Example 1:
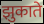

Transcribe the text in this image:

झुकाते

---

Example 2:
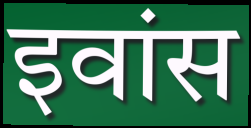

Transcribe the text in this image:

इवांस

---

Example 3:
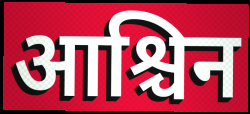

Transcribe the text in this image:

आश्चिन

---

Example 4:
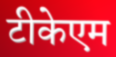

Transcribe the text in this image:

टीकेएम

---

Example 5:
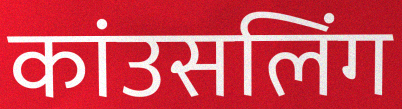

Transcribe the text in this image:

कांउसलिंग